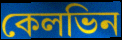
কেলভিন